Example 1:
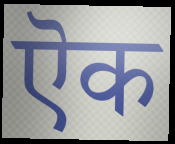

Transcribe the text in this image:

ऎक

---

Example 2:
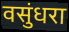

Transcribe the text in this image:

वसुंधरा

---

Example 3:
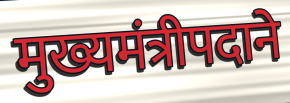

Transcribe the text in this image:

मुख्यमंत्रीपदाने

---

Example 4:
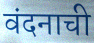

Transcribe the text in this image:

वंदनाची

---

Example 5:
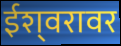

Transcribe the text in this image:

ईश्वरावर